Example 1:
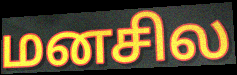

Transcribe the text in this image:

மனசில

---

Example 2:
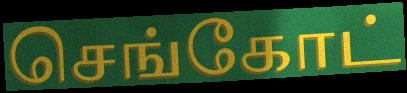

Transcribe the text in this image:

செங்கோட்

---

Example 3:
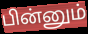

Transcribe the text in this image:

பின்னும்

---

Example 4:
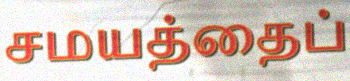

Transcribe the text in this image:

சமயத்தைப்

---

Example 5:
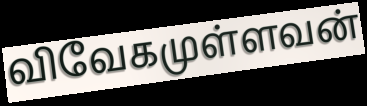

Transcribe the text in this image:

விவேகமுள்ளவன்